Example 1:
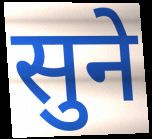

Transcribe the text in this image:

सुने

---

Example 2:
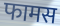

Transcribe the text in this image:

फामस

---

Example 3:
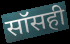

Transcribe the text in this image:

सॉसही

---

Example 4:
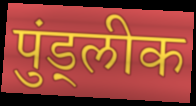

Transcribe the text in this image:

पुंड्लीक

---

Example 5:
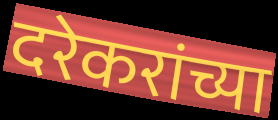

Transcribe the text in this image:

दरेकरांच्या